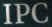
IPC